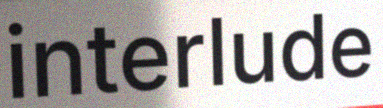
interlude